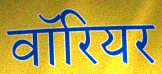
वॉरियर